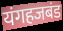
यंगहजबंड